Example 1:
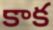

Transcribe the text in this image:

కాక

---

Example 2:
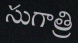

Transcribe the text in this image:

సుగాత్రి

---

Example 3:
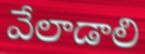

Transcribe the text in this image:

వేలాడాలి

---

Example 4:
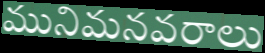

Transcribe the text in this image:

మునిమనవరాలు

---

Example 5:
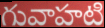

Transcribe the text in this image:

గువాహటి